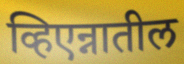
व्हिएन्नातील